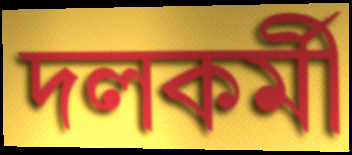
দলকর্মী